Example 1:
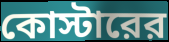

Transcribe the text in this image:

কোস্টারের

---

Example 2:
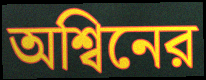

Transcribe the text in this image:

অশ্বিনের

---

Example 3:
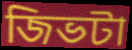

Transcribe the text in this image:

জিভটা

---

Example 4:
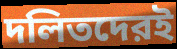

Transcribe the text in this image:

দলিতদেরই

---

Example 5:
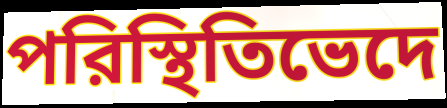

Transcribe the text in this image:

পরিস্থিতিভেদে